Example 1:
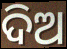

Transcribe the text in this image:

ଦିଅ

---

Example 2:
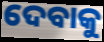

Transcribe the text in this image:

ଦେବାକୁ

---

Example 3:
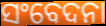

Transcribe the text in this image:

ସଂବେଦନା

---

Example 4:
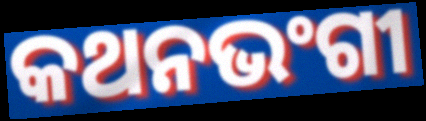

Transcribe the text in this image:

କଥନଭଂଗୀ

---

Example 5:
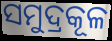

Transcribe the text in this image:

ସମୁଦ୍ରକୂଳ